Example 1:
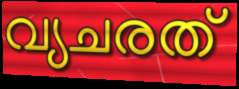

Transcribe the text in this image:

വ്യചരത്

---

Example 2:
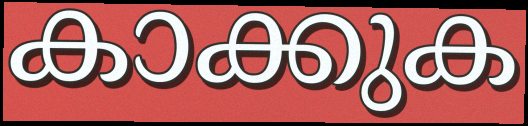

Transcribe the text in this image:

കാക്കുക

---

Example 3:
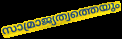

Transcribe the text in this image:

സാമ്രാജ്യത്വത്തെയും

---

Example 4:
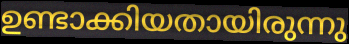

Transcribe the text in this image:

ഉണ്ടാക്കിയതായിരുന്നു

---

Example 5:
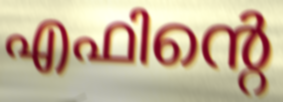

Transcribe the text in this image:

എഫിന്റെ